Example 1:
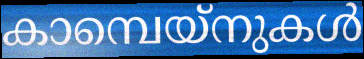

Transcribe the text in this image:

കാമ്പെയ്നുകൾ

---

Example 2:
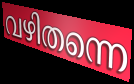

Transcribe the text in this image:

വഴിതന്നെ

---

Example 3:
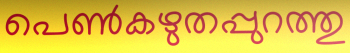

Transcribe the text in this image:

പെൺകഴുതപ്പുറത്തു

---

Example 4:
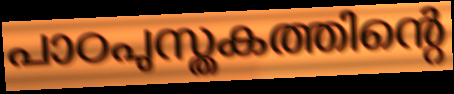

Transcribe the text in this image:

പാഠപുസ്തകത്തിന്റെ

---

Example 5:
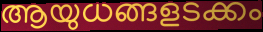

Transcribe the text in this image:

ആയുധങ്ങളടക്കം